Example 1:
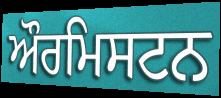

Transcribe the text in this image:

ਔਰਮਿਸਟਨ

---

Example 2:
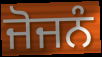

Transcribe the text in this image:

ਜੋਜਨੰ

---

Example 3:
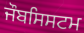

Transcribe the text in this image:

ਜੌਬਸਿਸਟਮ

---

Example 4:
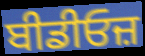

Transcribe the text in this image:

ਬੀਡੀਓਜ਼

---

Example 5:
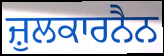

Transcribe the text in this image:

ਜ਼ੁਲਕਾਰਨੈਨ